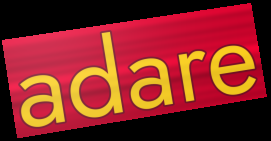
adare